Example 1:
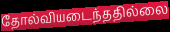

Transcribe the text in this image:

தோல்வியடைந்ததில்லை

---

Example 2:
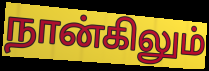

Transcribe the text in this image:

நான்கிலும்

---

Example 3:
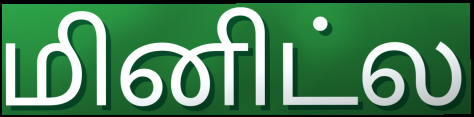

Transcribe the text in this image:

மினிட்ல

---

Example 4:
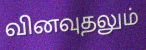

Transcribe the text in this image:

வினவுதலும்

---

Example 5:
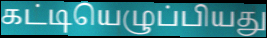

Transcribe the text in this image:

கட்டியெழுப்பியது